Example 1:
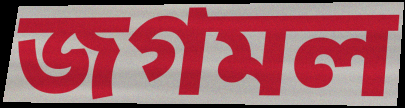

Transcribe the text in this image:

জগমল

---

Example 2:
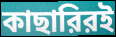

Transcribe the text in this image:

কাছারিরই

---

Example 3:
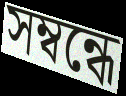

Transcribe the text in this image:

সম্বন্ধে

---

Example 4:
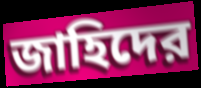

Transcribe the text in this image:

জাহিদের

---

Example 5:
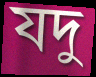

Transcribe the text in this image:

যদু